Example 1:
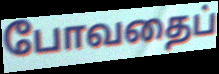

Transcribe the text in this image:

போவதைப்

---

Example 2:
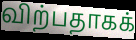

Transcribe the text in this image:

விற்பதாகக்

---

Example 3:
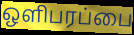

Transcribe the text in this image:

ஒளிபரப்பை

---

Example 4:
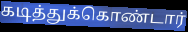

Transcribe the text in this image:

கடித்துக்கொண்டார்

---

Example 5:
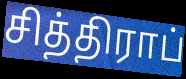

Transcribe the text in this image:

சித்திராப்